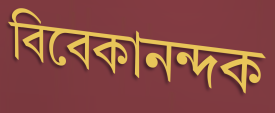
বিবেকানন্দক